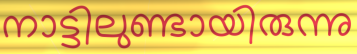
നാട്ടിലുണ്ടായിരുന്നു